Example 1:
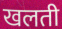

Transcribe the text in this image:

खलती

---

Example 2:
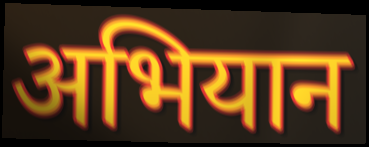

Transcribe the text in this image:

अभियान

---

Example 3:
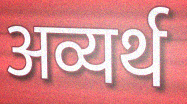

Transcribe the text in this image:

अव्यर्थ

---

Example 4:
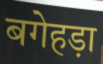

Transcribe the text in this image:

बगेहड़ा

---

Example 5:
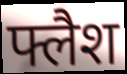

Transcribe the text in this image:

फ्लैश